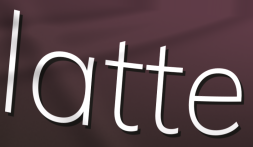
latte